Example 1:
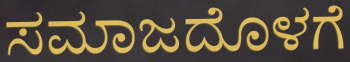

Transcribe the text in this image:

ಸಮಾಜದೊಳಗೆ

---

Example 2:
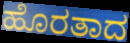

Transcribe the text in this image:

ಹೊರತಾದ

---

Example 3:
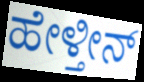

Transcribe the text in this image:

ಹೇಳ್ತೀನ್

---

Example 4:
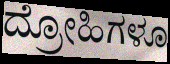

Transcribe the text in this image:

ದ್ರೋಹಿಗಳೂ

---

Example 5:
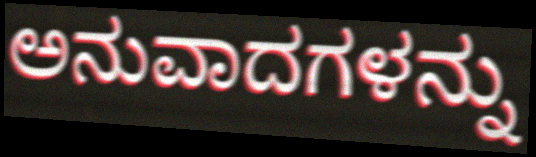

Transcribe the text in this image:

ಅನುವಾದಗಳನ್ನು